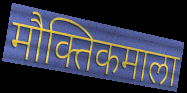
मौक्तिकमाला